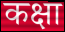
कक्षा